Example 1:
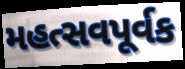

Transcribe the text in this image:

મહત્સવપૂર્વક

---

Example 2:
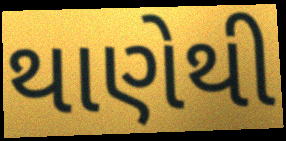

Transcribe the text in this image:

થાણેથી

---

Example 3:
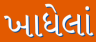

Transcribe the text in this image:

ખાધેલાં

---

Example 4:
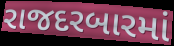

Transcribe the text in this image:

રાજદરબારમાં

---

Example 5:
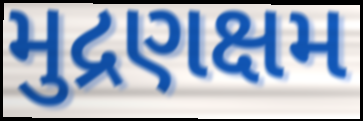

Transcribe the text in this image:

મુદ્રણક્ષમ